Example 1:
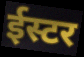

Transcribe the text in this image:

ईस्टर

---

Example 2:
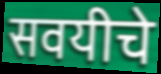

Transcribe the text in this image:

सवयीचे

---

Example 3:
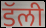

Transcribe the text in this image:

डॅली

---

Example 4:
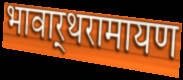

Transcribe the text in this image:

भावार्थरामायण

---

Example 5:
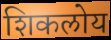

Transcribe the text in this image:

शिकलोय